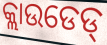
କ୍ଲାଉଡେଡ୍